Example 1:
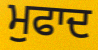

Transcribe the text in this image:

ਮੁਫਾਦ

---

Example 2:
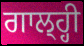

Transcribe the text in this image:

ਗਾਲ੍ਹ੍ਹੀ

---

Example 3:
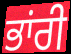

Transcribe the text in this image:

ਭਾਂਰੀ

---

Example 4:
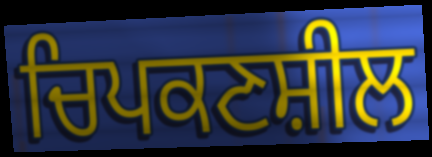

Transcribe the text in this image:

ਚਿਪਕਣਸ਼ੀਲ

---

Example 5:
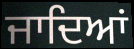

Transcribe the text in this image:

ਜਾਦਿਆਂ